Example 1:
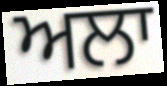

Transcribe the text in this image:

ਅਲਾ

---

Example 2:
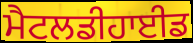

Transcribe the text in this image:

ਮੈਟਲਡੀਹਾਈਡ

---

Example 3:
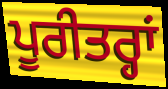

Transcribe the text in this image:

ਪੂਰੀਤਰ੍ਹਾਂ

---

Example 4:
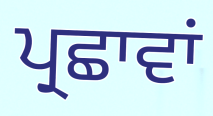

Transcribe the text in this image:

ਪ੍ਰਛਾਵਾਂ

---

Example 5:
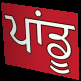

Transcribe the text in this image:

ਪਾਂਡੂ